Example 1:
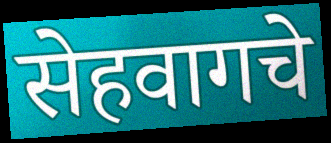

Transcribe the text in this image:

सेहवागचे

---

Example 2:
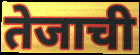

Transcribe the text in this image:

तेजाची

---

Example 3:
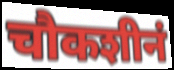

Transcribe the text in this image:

चौकशीनं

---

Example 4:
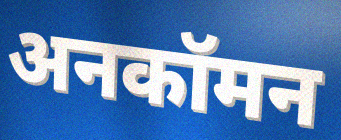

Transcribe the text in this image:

अनकॉमन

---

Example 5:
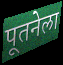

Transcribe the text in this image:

पूतनेला